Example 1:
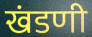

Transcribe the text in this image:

खंडणी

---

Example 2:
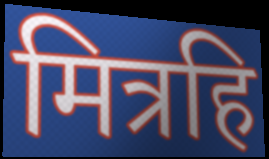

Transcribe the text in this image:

मित्रहि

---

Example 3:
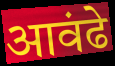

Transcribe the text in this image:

आवंढे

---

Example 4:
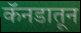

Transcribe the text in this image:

कॅनडातून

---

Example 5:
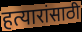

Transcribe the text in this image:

हत्यारांसाठी